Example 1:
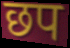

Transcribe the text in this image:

छप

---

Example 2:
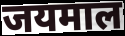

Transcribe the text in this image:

जयमाल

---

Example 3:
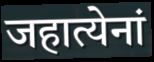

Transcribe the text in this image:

जहात्येनां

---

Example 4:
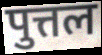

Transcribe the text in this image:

पुत्तल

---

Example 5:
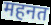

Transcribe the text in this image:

महनत